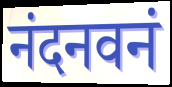
नंदनवनं